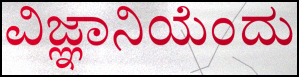
ವಿಜ್ಞಾನಿಯೆಂದು